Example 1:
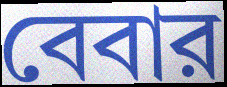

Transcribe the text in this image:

বেবার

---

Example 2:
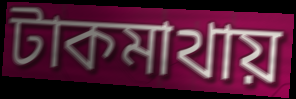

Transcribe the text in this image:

টাকমাথায়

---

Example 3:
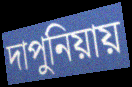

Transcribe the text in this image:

দাপুনিয়ায়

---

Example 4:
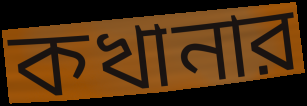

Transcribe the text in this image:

কখানার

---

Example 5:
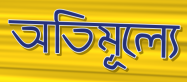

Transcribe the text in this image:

অতিমূল্যে